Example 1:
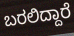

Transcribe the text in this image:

ಬರಲಿದ್ದಾರೆ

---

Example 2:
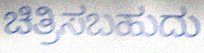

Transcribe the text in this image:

ಚಿತ್ರಿಸಬಹುದು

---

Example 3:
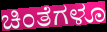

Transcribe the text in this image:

ಚಿಂತೆಗಳೂ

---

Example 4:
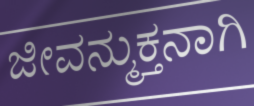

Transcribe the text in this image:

ಜೀವನ್ಮುಕ್ತನಾಗಿ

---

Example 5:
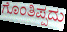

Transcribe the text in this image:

ಗೊಂತಿಪ್ಪದು